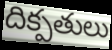
దిక్పతులు